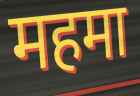
महमा